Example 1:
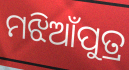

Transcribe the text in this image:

ମଝିଆଁପୁତ୍ର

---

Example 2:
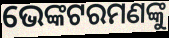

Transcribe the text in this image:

ଭେଙ୍କଟରମଣଙ୍କୁ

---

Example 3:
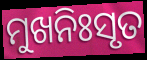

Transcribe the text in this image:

ମୁଖନିଃସୃତ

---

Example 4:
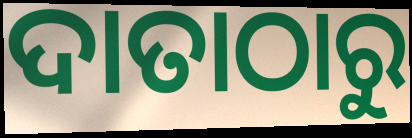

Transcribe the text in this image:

ଦାତାଠାରୁ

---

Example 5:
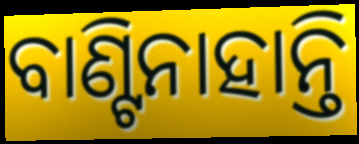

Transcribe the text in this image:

ବାଣ୍ଟିନାହାନ୍ତି